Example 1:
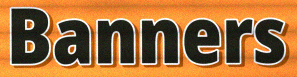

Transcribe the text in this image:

Banners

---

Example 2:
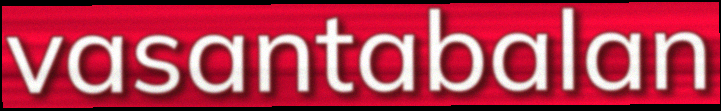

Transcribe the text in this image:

vasantabalan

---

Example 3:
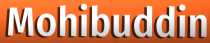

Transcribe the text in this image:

Mohibuddin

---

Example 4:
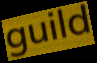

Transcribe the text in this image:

guild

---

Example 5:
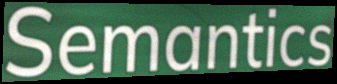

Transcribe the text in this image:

Semantics